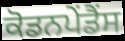
ਕੋਡਨਪੇਂਡੈਂਸ